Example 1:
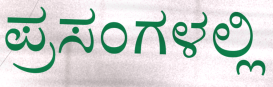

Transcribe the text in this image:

ಪ್ರಸಂಗಳಲ್ಲಿ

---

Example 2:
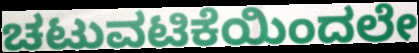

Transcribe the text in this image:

ಚಟುವಟಿಕೆಯಿಂದಲೇ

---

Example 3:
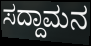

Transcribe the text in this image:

ಸದ್ದಾಮನ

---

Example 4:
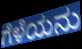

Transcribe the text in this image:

ಗೆಳೆಯನು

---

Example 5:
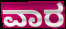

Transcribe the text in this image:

ವಾರ